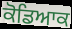
ਕੋਡਿਆਕ